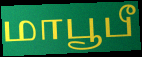
மாபூபீ